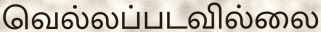
வெல்லப்படவில்லை